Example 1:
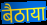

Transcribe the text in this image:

बैठाया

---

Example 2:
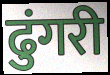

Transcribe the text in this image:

ढुंगरी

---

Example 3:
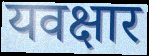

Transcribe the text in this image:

यवक्षार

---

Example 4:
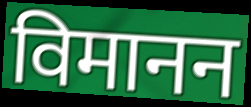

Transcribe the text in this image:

विमानन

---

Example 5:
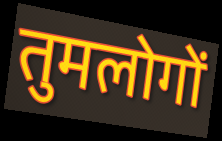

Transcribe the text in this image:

तुमलोगों